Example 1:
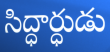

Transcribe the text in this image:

సిద్ధార్ధుడు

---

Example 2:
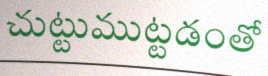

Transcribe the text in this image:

చుట్టుముట్టడంతో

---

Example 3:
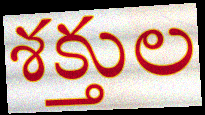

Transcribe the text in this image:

శక్తుల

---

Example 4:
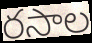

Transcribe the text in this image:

రసాల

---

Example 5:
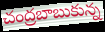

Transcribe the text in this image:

చంద్రబాబుకున్న